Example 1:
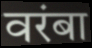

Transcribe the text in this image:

वरंबा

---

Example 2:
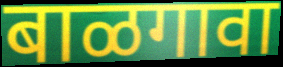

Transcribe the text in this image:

बाळगावा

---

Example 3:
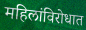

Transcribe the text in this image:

महिलांविरोधात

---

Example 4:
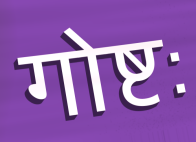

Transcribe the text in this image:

गोष्टः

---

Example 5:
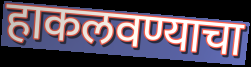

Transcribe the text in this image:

हाकलवण्याचा